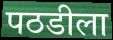
पठडीला